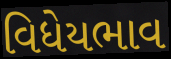
વિધેયભાવ